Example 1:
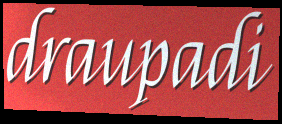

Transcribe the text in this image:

draupadi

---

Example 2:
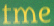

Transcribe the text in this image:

tme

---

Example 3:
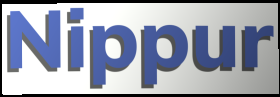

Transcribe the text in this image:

Nippur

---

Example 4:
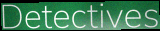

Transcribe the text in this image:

Detectives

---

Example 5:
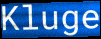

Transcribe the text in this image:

Kluge